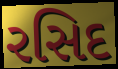
રસિદ